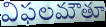
విఫలమౌతూ